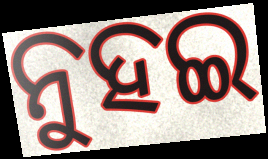
ନୁହଇ